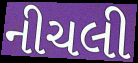
નીચલી